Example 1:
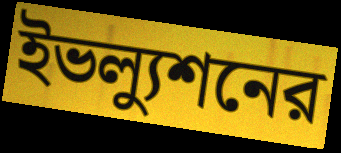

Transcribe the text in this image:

ইভল্যুশনের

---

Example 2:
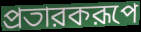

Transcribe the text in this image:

প্রতারকরূপে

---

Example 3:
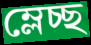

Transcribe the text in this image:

ম্লেচ্ছ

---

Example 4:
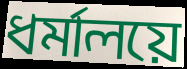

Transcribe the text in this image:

ধর্মালয়ে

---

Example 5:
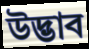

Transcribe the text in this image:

উদ্ভাব